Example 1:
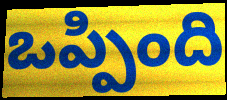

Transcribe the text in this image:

ఒప్పింది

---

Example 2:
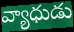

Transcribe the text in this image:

వ్యాధుడు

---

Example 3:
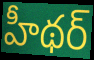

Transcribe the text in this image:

హీథర్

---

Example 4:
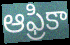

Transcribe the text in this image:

ఆఫ్రికా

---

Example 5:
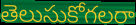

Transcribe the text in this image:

తెలుసుకోగలరా